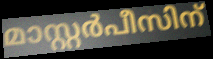
മാസ്റ്റർപീസിന്